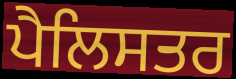
ਪੈਲਿਸਤਰ